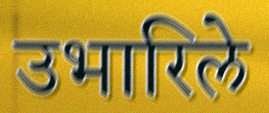
उभारिले